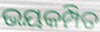
ଭୟକମ୍ପିତ